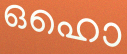
ഒഹൊ